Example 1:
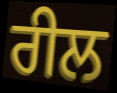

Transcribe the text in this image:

ਰੀਲ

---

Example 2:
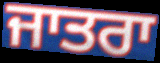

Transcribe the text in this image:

ਜਾਤਰਾ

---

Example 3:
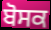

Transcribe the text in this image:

ਬੋਸਕ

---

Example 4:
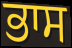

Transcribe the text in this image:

ਭਾਸ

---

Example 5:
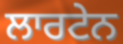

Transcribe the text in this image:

ਲਾਰਟੇਨ